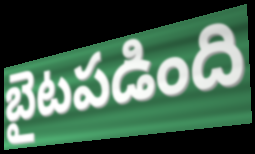
బైటపడింది